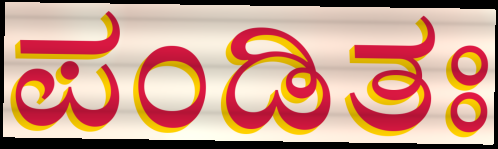
ಪಂಡಿತಃ